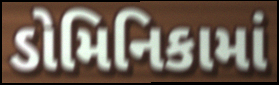
ડોમિનિકામાં